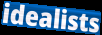
idealists